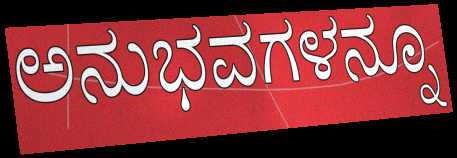
ಅನುಭವಗಳನ್ನೂ